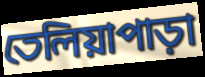
তেলিয়াপাড়া